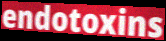
endotoxins